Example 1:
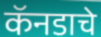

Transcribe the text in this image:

कॅनडाचे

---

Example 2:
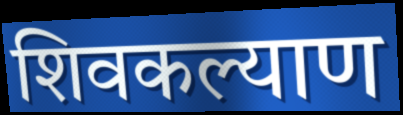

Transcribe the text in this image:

शिवकल्याण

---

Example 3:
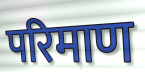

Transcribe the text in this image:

परिमाण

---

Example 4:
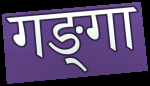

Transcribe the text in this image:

गङ्‍गा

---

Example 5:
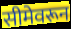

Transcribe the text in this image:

सीमेवरून